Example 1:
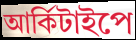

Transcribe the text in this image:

আর্কিটাইপে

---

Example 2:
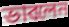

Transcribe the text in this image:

ভাবলেন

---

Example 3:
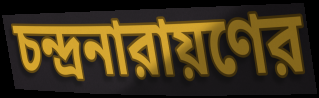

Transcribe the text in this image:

চন্দ্রনারায়ণের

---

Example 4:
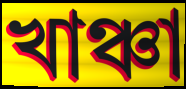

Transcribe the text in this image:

খাঞ্চা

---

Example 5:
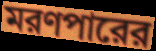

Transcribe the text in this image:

মরণপারের